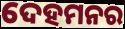
ଦେହମନର